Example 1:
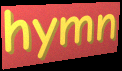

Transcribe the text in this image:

hymn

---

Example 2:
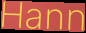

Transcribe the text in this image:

Hann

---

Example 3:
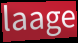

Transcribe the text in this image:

laage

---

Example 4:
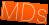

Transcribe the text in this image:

MDs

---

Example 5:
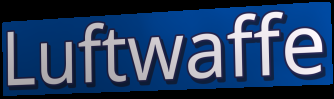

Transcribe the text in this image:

Luftwaffe